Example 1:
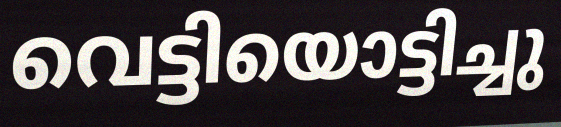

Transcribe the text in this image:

വെട്ടിയൊട്ടിച്ചു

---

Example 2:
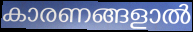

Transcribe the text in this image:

കാരണങ്ങളാൽ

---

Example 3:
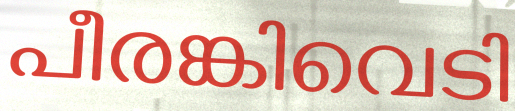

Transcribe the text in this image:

പീരങ്കിവെടി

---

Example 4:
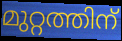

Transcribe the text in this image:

മുറ്റത്തിന്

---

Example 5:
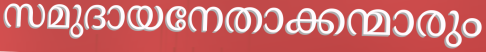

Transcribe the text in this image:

സമുദായനേതാക്കന്മാരും